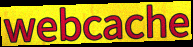
webcache